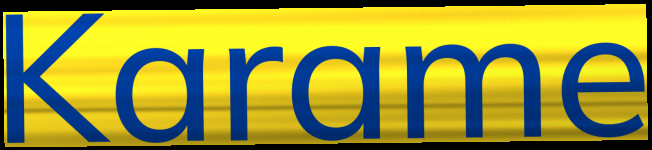
Karame